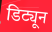
डिट्यून